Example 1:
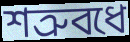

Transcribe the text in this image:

শত্রুবধে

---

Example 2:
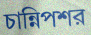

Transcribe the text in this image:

চান্নিপশর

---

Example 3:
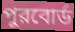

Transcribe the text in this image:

পুরবোর্ড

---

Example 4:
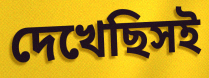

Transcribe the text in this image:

দেখেছিসই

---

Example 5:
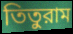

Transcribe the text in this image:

তিতুরাম